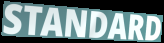
STANDARD